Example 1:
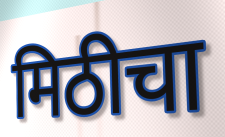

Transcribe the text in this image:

मिठीचा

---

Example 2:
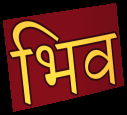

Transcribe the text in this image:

भिव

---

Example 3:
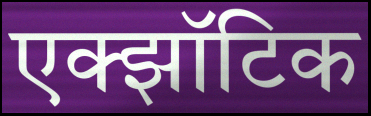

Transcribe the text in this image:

एक्झॉटिक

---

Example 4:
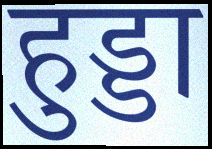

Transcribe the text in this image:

हुड्डा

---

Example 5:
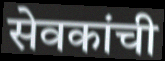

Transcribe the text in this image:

सेवकांची